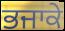
ਭਜਾਕੇ